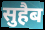
सुहैब